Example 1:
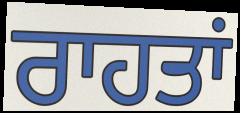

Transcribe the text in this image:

ਰਾਹਤਾਂ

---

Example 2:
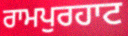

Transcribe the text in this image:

ਰਾਮਪੁਰਹਾਟ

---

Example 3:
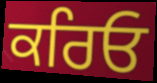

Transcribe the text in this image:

ਕਰਿਓ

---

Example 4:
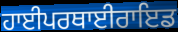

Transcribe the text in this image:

ਹਾਈਪਰਥਾਈਰਾਇਡ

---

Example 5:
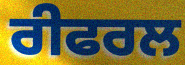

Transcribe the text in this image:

ਰੀਫਰਲ